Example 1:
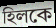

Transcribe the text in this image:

হিলকে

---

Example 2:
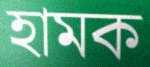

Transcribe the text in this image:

হামক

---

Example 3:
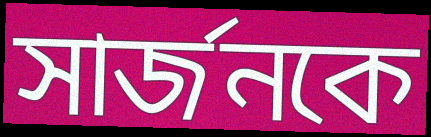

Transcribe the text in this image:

সার্জনকে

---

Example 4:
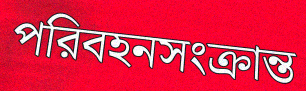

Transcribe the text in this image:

পরিবহনসংক্রান্ত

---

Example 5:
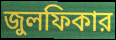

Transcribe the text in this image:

জুলফিকার